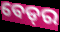
ବେଡ୍‍ର